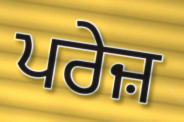
ਪਰੇਜ਼